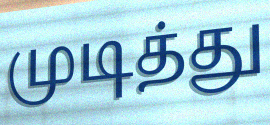
முடித்து